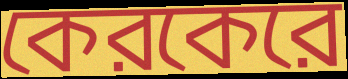
কেরকেরে